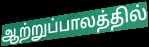
ஆற்றுப்பாலத்தில்